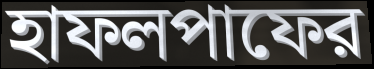
হাফলপাফের